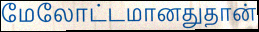
மேலோட்டமானதுதான்